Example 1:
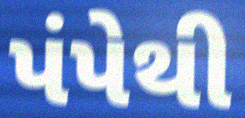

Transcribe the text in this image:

પંપેથી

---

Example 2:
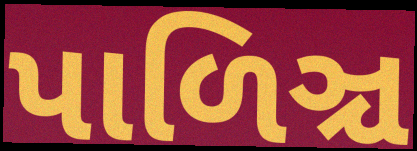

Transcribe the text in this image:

પાળિઞ્ચ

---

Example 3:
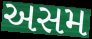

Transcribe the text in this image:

અસમ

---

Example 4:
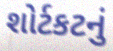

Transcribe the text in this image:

શોર્ટકટનું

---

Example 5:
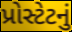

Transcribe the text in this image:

પ્રોસ્ટેટનું